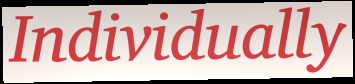
Individually